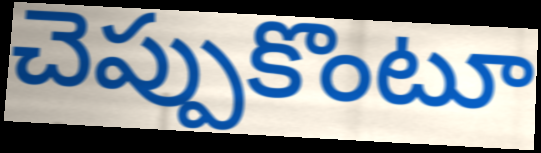
చెప్పుకొంటూ